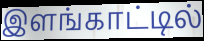
இளங்காட்டில்